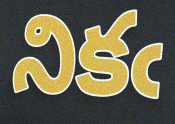
నికఁ